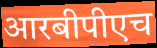
आरबीपीएच